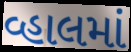
વ્હાલમાં